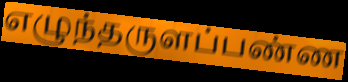
எழுந்தருளப்பண்ண